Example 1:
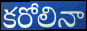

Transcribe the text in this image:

కరోలినా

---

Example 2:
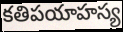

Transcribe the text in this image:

కతిపయాహస్య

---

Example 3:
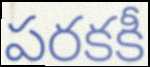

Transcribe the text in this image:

పరకకీ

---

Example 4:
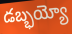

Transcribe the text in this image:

డబ్భయ్యో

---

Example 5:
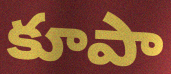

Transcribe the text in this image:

కూపా